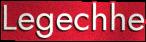
Legechhe